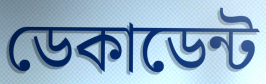
ডেকাডেন্ট